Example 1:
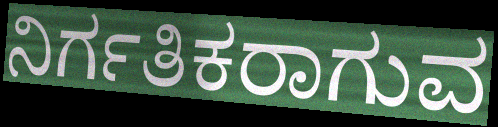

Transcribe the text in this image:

ನಿರ್ಗತಿಕರಾಗುವ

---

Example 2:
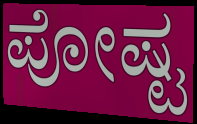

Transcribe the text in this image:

ಪೋಷ್ಟ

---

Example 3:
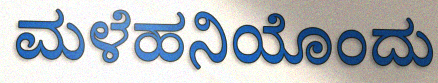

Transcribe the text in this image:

ಮಳೆಹನಿಯೊಂದು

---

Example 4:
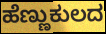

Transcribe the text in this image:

ಹೆಣ್ಣುಕುಲದ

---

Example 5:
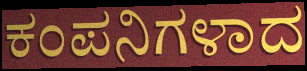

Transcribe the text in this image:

ಕಂಪನಿಗಳಾದ